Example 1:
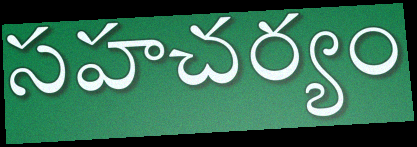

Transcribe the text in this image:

సహచర్యం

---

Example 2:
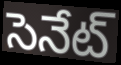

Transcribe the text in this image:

సెనేట్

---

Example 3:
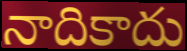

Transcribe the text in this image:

నాదికాదు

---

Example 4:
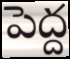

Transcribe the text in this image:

పెద్ద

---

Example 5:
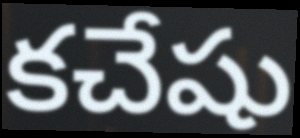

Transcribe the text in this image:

కచేషు